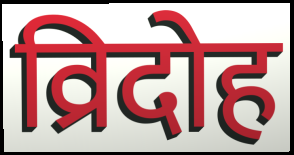
व्रिदोह